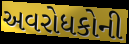
અવરોધકોની